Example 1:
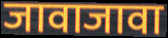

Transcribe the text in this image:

जावाजावा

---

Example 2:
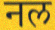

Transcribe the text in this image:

नल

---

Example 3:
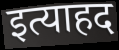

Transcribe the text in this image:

इत्याहद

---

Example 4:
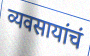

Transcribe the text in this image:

व्यवसायांचं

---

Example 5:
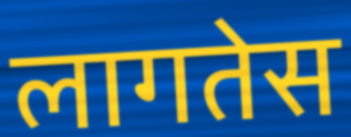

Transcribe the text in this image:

लागतेस